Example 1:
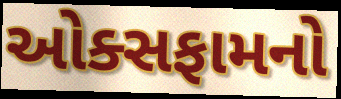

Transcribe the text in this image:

ઓક્સફામનો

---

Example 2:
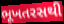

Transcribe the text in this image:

ભૂખતરસથી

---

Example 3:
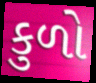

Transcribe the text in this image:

કુળો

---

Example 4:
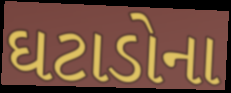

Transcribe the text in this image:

ઘટાડોના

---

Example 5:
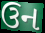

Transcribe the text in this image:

ઉન